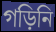
গড়িনি